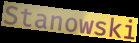
Stanowski